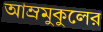
আম্রমুকুলের